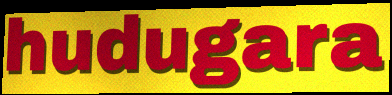
hudugara